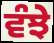
ਵੰਝੇ